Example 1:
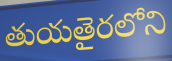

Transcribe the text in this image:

తుయతైరలోని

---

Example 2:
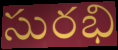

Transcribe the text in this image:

సురభి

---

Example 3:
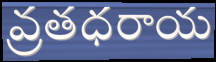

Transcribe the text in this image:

వ్రతధరాయ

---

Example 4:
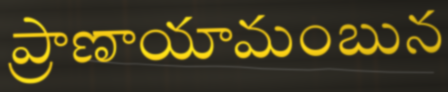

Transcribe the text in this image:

ప్రాణాయామంబున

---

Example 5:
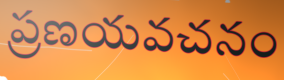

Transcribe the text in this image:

ప్రణయవచనం